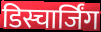
डिस्चार्जिंग